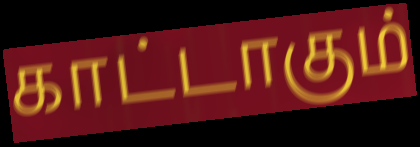
காட்டாகும்